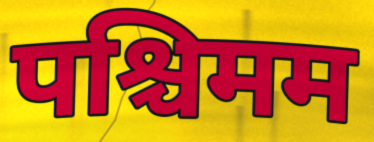
पश्चिमम